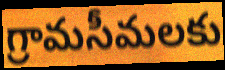
గ్రామసీమలకు